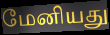
மேனியது